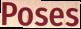
Poses